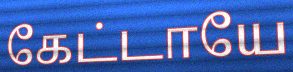
கேட்டாயே